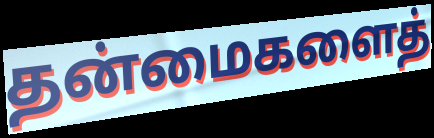
தன்மைகளைத்